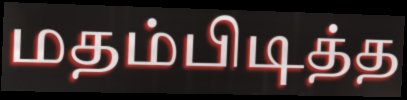
மதம்பிடித்த